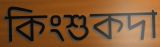
কিংশুকদা